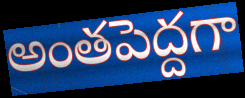
అంతపెద్దగా